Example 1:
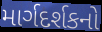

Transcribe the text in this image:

માર્ગદર્શકનો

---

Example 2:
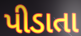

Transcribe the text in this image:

પીડાતા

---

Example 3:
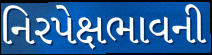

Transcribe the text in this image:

નિરપેક્ષભાવની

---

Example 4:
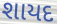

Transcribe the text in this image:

શાયદ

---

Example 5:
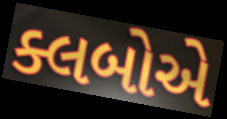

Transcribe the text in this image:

ક્લબોએ